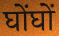
घोंघों